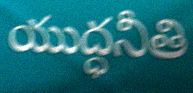
యుద్ధనీతి